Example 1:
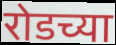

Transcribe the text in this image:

रोडच्या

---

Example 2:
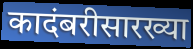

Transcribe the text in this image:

कादंबरीसारख्या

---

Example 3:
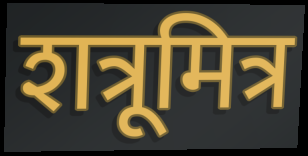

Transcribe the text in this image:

शत्रूमित्र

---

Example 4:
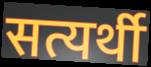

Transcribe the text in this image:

सत्यर्थी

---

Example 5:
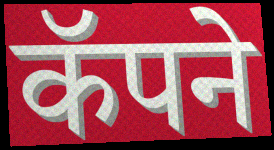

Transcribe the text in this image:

कॅपने